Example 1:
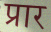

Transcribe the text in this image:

प्रार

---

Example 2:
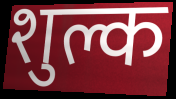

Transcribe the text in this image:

शुल्‍क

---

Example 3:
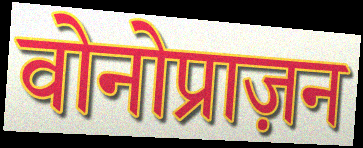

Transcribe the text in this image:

वोनोप्राज़न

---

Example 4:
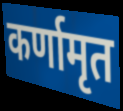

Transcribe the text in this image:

कर्णामृत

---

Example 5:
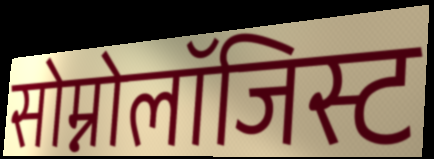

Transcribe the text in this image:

सोम्नोलॉजिस्ट